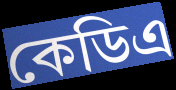
কেডিএ